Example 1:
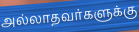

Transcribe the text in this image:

அல்லாதவர்களுக்கு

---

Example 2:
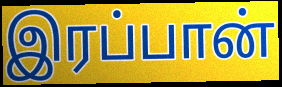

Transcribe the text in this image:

இரப்பான்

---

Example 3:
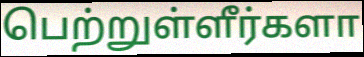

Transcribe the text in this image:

பெற்றுள்ளீர்களா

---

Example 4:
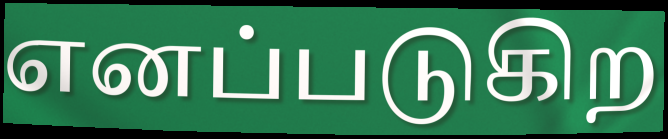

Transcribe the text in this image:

எனப்படுகிற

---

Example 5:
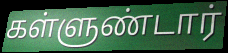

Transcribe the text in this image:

கள்ளுண்டார்